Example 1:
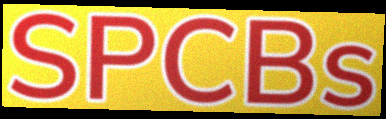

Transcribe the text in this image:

SPCBs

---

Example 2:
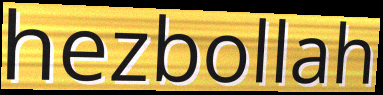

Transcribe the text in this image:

hezbollah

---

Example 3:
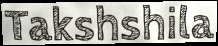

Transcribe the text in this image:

Takshshila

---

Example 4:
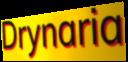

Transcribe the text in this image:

Drynaria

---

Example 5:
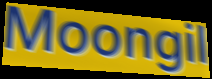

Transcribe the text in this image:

Moongil